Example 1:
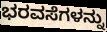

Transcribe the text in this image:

ಭರವಸೆಗಳನ್ನು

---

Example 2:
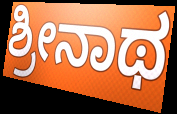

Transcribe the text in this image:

ಶ್ರೀನಾಥ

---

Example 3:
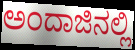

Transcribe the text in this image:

ಅಂದಾಜಿನಲ್ಲಿ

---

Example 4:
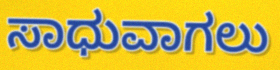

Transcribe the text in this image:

ಸಾಧುವಾಗಲು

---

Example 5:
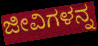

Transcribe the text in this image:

ಜೀವಿಗಳನ್ನ